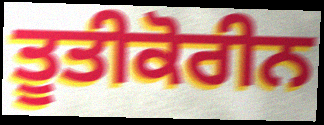
ਤੂਤੀਕੋਰੀਨ